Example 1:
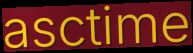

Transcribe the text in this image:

asctime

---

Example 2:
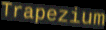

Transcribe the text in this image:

Trapezium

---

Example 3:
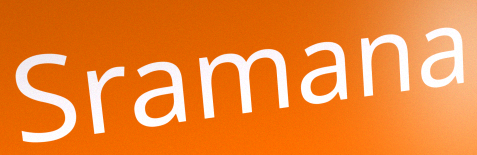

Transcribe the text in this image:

Sramana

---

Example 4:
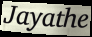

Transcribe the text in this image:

Jayathe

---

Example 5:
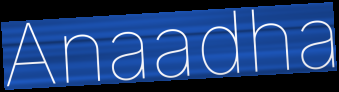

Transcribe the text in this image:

Anaadha